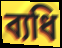
ব্যধি